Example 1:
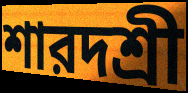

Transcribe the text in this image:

শারদশ্রী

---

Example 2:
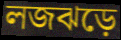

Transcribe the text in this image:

লজঝড়ে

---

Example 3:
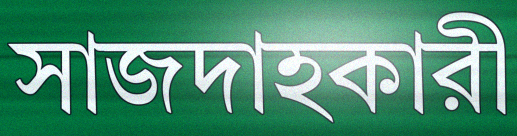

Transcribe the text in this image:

সাজদাহকারী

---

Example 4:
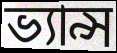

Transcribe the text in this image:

ভ্যান্স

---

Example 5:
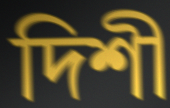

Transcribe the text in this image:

দিশী